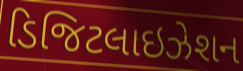
ડિજિટલાઇઝેશન